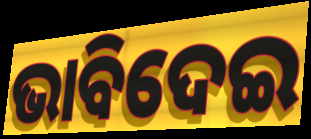
ଭାବିଦେଇ